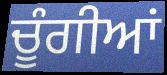
ਚੂੰਗੀਆਂ